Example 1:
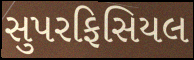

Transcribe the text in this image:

સુપરફિસિયલ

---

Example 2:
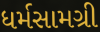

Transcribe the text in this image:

ધર્મસામગ્રી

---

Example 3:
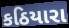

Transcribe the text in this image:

કઠિયારા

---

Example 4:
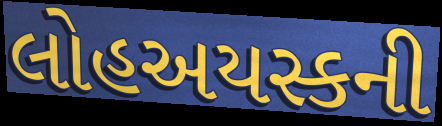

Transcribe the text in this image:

લોહઅયસ્કની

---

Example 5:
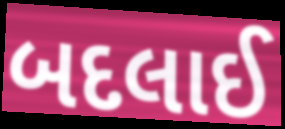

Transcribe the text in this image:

બદલાઈ